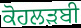
ਕੋਹਲੜਬੀ